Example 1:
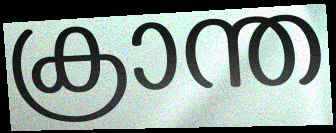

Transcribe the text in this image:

ക്രാന്ത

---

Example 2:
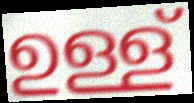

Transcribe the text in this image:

ഉള്ള്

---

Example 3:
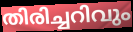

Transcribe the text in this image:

തിരിച്ചറിവും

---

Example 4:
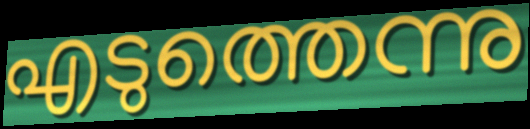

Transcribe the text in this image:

എടുത്തെന്നു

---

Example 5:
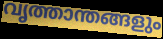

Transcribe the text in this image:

വൃത്താന്തങ്ങളും